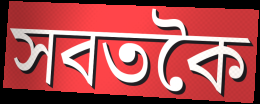
সবতকৈ